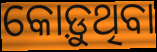
କୋଡ଼ୁଥିବା